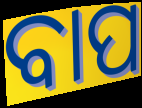
ବାପ